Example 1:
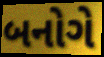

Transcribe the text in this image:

બનોગે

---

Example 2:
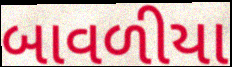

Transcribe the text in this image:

બાવળીયા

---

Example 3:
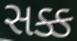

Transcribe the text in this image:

સક્ક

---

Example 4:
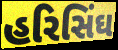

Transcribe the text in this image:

હરિસિંઘ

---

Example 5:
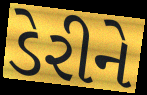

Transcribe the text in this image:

ડેરીને